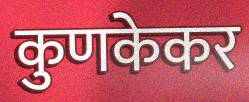
कुणकेकर